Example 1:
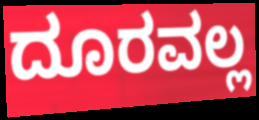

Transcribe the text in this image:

ದೂರವಲ್ಲ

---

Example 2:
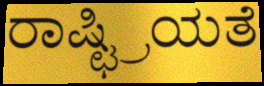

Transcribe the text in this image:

ರಾಷ್ಟ್ರಿಯತೆ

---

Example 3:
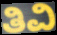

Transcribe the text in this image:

ತಿವಿ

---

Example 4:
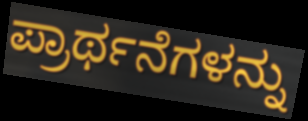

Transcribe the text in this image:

ಪ್ರಾರ್ಥನೆಗಳನ್ನು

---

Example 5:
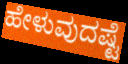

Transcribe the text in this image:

ಹೇಳುವುದಷ್ಟೆ